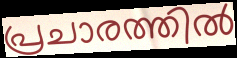
പ്രചാരത്തിൽ